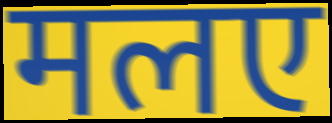
मलए